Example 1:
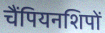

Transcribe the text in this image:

चैंपियनशिपों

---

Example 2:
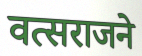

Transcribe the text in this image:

वत्सराजने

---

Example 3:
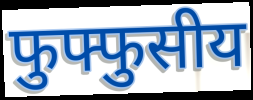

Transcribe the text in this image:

फुफ्फुसीय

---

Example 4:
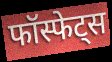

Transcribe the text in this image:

फॉस्फेट्स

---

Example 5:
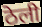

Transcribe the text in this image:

ठेली